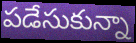
పడేసుకున్నా